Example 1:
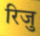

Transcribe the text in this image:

रिजु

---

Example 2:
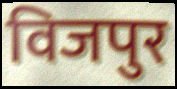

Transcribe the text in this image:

विजपुर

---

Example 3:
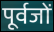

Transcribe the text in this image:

पूर्वजों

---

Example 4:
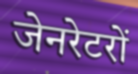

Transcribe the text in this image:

जेनरेटरों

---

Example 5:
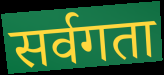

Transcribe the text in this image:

सर्वगता